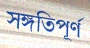
সঙ্গতিপূর্ণ